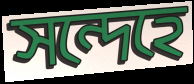
সন্দেহে